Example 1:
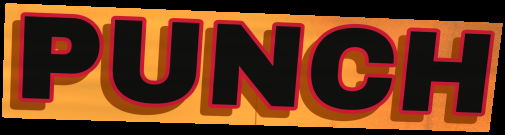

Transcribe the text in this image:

PUNCH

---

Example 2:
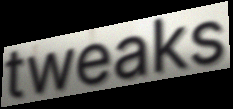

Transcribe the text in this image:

tweaks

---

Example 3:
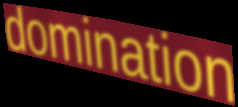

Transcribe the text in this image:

domination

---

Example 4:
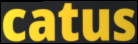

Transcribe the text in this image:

catus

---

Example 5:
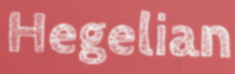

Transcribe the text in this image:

Hegelian